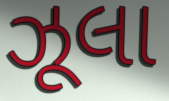
ઝૂલા